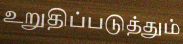
உறுதிப்படுத்தும்